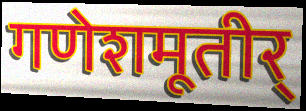
गणेशमूतीर्